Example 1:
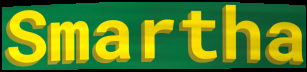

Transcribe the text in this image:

Smartha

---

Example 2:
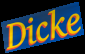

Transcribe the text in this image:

Dicke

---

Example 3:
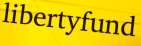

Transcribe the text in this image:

libertyfund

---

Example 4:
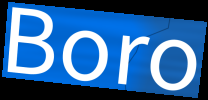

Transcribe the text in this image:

Boro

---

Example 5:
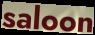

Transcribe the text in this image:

saloon